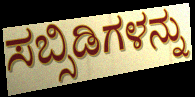
ಸಬ್ಸಿಡಿಗಳನ್ನು